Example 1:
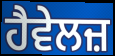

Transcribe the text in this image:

ਹੈਵੇਲਜ਼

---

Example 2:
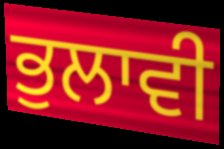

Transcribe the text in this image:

ਭੁਲਾਵੀ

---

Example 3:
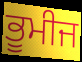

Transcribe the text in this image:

ਭੂਮੀਜ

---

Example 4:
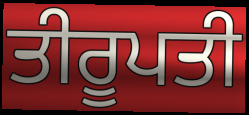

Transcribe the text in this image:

ਤੀਰੂਪਤੀ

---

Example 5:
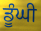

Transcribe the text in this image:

ਡੂੰਘੀ